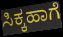
ಸಿಕ್ಕಹಾಗೆ